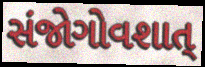
સંજોગોવશાત્